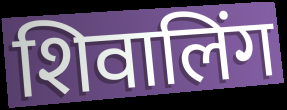
शिवालिंग